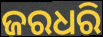
ଜରଧରି